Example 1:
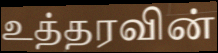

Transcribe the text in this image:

உத்தரவின்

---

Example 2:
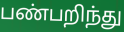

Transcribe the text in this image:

பண்பறிந்து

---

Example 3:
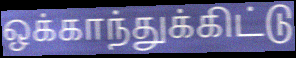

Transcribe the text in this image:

ஒக்காந்துக்கிட்டு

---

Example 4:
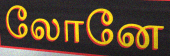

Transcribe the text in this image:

லோனே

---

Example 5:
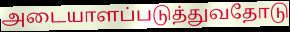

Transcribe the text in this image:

அடையாளப்படுத்துவதோடு